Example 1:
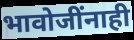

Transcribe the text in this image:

भावोजींनाही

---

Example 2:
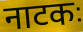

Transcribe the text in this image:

नाटकः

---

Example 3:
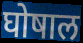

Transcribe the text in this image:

घोषाल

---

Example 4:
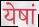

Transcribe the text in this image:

येषां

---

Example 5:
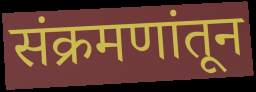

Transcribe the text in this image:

संक्रमणांतून